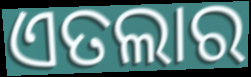
ଏତଲାର